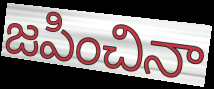
జపించినా